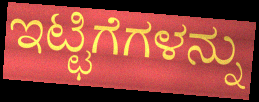
ಇಟ್ಟಿಗೆಗಳನ್ನು